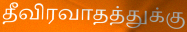
தீவிரவாதத்துக்கு